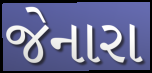
જેનારા